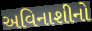
અવિનાશીનો